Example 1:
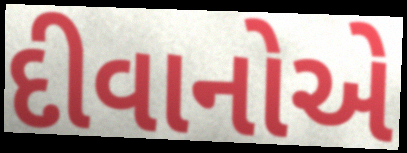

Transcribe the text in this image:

દીવાનોએ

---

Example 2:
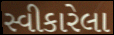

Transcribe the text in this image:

સ્વીકારેલા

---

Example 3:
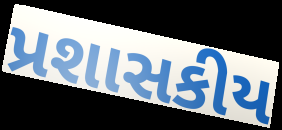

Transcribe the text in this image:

પ્રશાસકીય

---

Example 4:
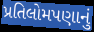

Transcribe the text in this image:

પ્રતિલોમપણાનું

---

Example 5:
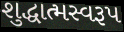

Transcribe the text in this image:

શુદ્ધાત્મસ્વરૂપ